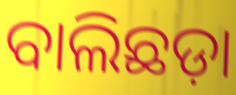
ବାଲିଛଡ଼ା